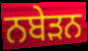
ਨਬੇੜਨ